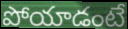
పోయాడంటే